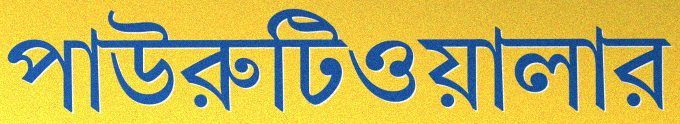
পাউরুটিওয়ালার